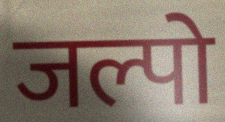
जल्पो